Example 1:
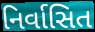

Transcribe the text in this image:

નિર્વાસિત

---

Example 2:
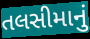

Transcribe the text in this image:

તલસીમાનું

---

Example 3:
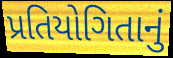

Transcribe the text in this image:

પ્રતિયોગિતાનું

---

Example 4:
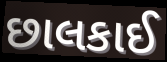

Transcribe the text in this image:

છાલકાઈ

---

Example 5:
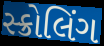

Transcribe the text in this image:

સ્ક્રોલિંગ